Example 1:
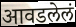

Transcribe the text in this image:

आवडलेलं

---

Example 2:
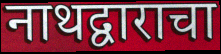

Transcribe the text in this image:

नाथद्वाराचा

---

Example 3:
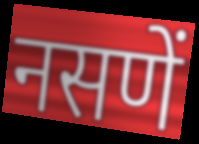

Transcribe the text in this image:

नसणें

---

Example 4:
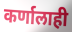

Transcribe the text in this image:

कर्णालाही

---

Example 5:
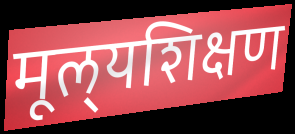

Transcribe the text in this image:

मूल्यशिक्षण